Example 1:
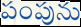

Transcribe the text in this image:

పంపును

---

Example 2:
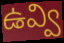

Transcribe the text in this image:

ఉవ్వి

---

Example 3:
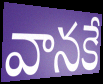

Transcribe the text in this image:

వానకే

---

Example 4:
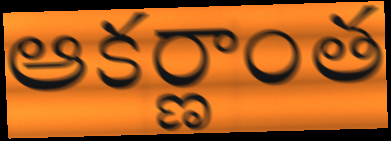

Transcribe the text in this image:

ఆకర్ణాంత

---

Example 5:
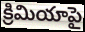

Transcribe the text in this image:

క్రిమియాపై